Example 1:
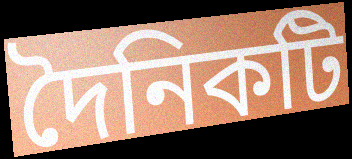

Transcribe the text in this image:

দৈনিকটি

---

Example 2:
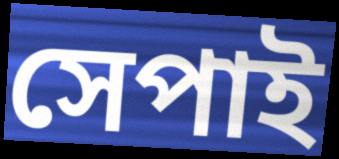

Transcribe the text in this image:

সেপাই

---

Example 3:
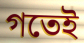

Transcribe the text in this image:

গতেই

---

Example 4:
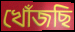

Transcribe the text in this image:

খোঁজছি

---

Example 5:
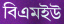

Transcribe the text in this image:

বিএমইউ